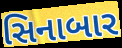
સિનાબાર